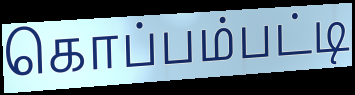
கொப்பம்பட்டி